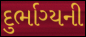
દુર્ભાગ્યની